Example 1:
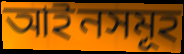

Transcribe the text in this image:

আইনসমূহ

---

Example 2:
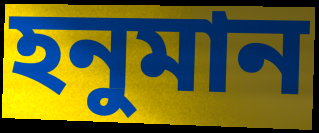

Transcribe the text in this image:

হনুমান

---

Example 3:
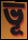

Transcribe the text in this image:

ভূ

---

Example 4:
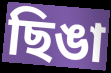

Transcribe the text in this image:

ছিঙা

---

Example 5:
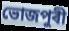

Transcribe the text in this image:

ভোজপুৰী